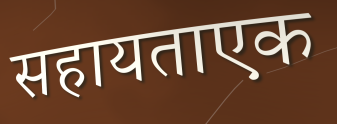
सहायताएक